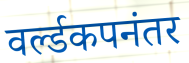
वर्ल्डकपनंतर